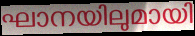
ഘാനയിലുമായി